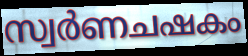
സ്വർണചഷകം